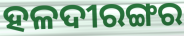
ହଳଦୀରଙ୍ଗର